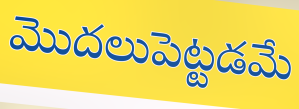
మొదలుపెట్టడమే